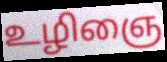
உழிஞை